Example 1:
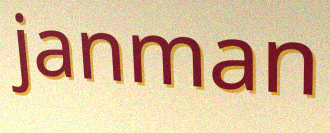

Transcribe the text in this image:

janman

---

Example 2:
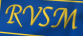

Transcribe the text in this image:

RVSM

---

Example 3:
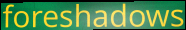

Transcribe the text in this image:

foreshadows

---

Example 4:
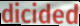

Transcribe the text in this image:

dicided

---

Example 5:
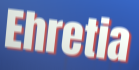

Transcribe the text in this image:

Ehretia